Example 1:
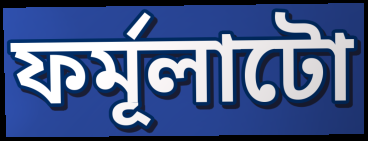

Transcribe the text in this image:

ফৰ্মূলাটো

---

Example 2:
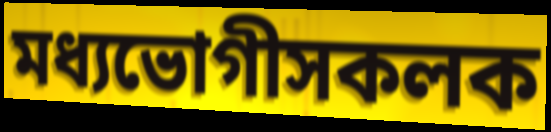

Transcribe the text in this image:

মধ্যভোগীসকলক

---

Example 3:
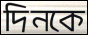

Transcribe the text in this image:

দিনকে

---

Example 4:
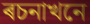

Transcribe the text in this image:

ৰচনাখনে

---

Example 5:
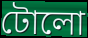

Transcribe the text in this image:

টোলো